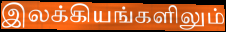
இலக்கியங்களிலும்